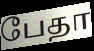
பேதா